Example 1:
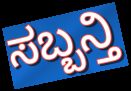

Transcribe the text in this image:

ಸಬ್ಬನ್ತಿ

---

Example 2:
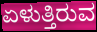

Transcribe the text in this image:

ಏಳುತ್ತಿರುವ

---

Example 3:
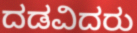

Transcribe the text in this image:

ದಡವಿದರು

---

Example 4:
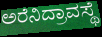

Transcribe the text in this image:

ಅರೆನಿದ್ರಾವಸ್ಥೆ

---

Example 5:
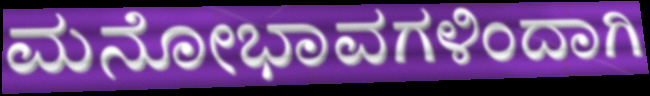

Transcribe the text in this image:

ಮನೋಭಾವಗಳಿಂದಾಗಿ